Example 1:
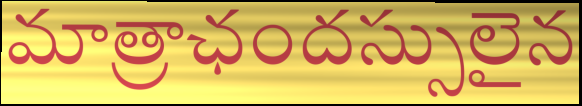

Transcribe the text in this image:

మాత్రాఛందస్సులైన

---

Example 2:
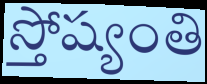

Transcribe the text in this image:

స్తోష్యంతి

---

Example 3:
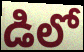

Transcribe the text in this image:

డిలో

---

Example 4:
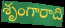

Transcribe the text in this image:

శృంగారాది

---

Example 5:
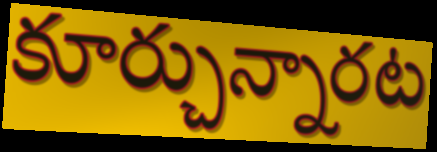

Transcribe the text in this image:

కూర్చున్నారట